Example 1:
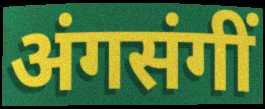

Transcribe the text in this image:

अंगसंगीं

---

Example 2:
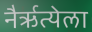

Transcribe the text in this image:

नैर्ऋत्येला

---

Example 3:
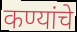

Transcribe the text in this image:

कण्यांचे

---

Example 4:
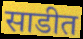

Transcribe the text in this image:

साडीत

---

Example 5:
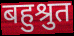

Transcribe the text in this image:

बहुश्रुत